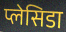
प्लेसिडा